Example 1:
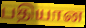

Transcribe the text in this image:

பதியான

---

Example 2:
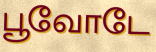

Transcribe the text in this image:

பூவோடே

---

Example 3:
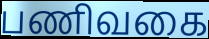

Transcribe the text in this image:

பணிவகை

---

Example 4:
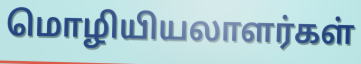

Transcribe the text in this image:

மொழியியலாளர்கள்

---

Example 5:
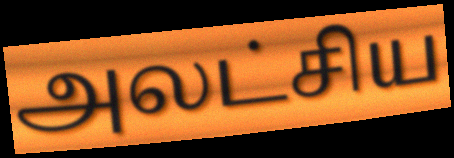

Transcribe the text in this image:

அலட்சிய